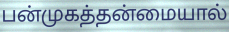
பன்முகத்தன்மையால்